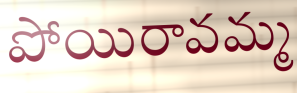
పోయిరావమ్మ